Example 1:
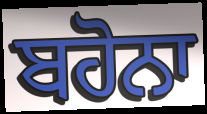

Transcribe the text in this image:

ਬਹੋਨਾ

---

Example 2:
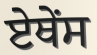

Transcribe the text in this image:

ਏਥੇਂਸ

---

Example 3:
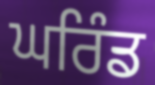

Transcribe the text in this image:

ਘਰਿੰਡ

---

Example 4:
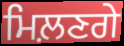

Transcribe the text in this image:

ਮਿਲ਼ਣਗੇ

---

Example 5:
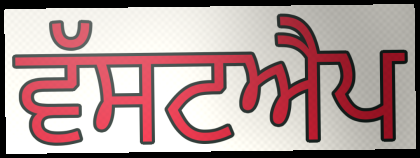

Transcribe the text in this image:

ਵੱਸਟਐਪ